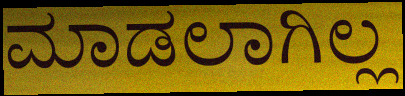
ಮಾಡಲಾಗಿಲ್ಲ